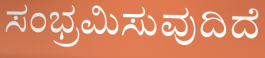
ಸಂಭ್ರಮಿಸುವುದಿದೆ